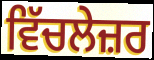
ਵਿੱਚਲੇਜ਼ਰ